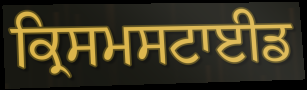
ਕ੍ਰਿਸਮਸਟਾਈਡ